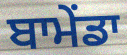
ਬਾਮੇਂਡਾ